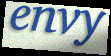
envy